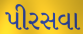
પીરસવા